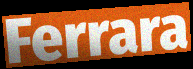
Ferrara